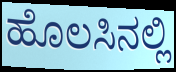
ಹೊಲಸಿನಲ್ಲಿ